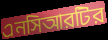
এনসিআরটির